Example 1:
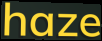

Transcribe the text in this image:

haze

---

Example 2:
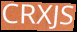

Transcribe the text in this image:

CRXJS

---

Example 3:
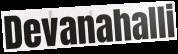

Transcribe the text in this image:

Devanahalli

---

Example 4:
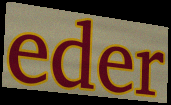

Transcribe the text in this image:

eder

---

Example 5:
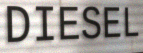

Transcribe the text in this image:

DIESEL